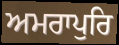
ਅਮਰਾਪੁਰਿ